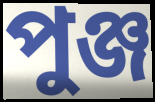
পুঞ্জ